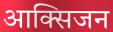
आक्सिजन